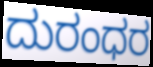
ದುರಂಧರ